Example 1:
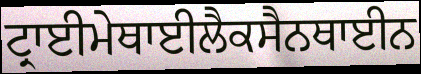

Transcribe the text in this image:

ਟ੍ਰਾਈਮੇਥਾਈਲੈਕਸੈਨਥਾਈਨ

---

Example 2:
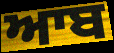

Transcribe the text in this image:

ਆਬ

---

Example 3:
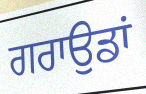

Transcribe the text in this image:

ਗਰਾਉਡਾਂ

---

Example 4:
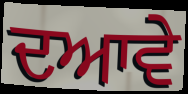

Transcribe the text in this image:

ਦਆਵੇ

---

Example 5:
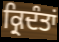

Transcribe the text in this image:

ਕ੍ਰਿਦੰਤਾਂ